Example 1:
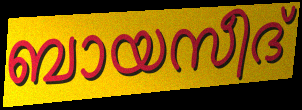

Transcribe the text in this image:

ബായസീദ്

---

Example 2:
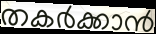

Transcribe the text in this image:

തകർക്കാൻ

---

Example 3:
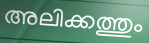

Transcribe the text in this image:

അലിക്കത്തും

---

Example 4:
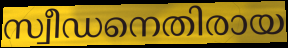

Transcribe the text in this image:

സ്വീഡനെതിരായ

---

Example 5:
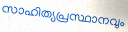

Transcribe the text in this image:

സാഹിത്യപ്രസ്ഥാനവും